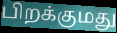
பிறக்குமது